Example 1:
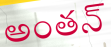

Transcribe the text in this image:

అంతన్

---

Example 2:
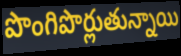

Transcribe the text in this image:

పొంగిపొర్లుతున్నాయి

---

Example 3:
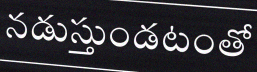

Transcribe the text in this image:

నడుస్తుండటంతో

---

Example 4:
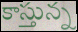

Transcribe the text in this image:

కాస్తున్న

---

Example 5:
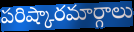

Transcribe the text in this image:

పరిష్కారమార్గాలు